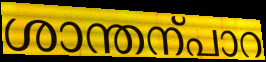
ശാന്തന്പാറ